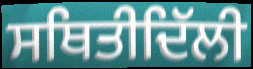
ਸਥਿਤੀਦਿੱਲੀ